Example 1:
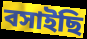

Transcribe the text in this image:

বসাইছি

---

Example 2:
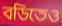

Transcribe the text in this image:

বডিতেও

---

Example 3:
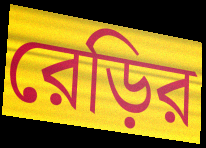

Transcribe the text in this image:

রেড়ির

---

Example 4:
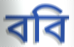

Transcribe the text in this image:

ববি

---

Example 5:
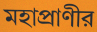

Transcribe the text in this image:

মহাপ্রাণীর